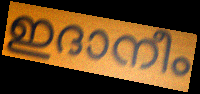
ഇദാനീം